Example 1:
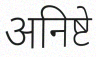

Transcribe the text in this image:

अनिष्टे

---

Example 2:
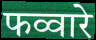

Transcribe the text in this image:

फव्वारे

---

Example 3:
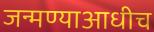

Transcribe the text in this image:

जन्मण्याआधीच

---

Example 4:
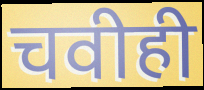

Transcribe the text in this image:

चवीही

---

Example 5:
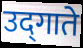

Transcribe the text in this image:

उद्‌गाते